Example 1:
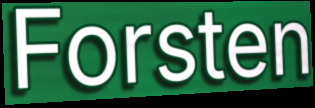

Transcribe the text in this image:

Forsten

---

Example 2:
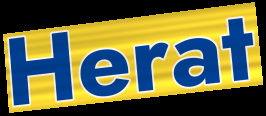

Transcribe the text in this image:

Herat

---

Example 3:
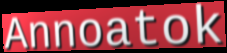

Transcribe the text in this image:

Annoatok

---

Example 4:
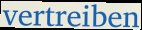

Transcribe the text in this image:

vertreiben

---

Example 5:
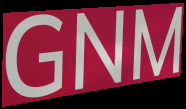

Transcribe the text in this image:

GNM